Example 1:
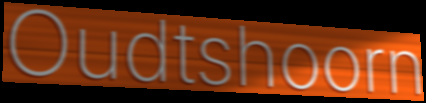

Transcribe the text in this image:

Oudtshoorn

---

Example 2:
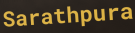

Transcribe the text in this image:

Sarathpura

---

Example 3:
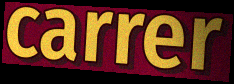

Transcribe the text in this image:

carrer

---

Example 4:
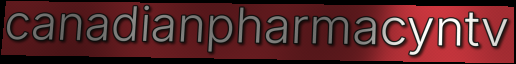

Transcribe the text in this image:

canadianpharmacyntv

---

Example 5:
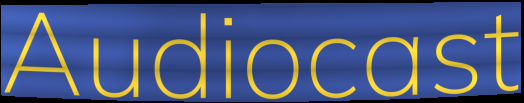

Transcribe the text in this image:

Audiocast